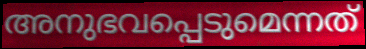
അനുഭവപ്പെടുമെന്നത്